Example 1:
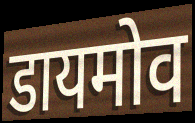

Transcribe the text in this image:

डायमोव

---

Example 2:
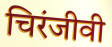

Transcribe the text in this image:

चिरंजीवी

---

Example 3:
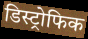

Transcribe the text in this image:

डिस्ट्रोफिक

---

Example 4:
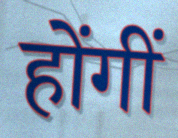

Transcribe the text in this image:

होंगीं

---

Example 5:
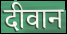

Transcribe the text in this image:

दीवान